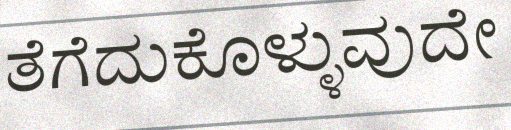
ತೆಗೆದುಕೊಳ್ಳುವುದೇ